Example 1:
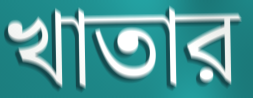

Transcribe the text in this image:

খাতার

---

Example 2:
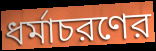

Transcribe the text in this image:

ধর্মাচরণের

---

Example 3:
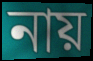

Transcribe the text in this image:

নায়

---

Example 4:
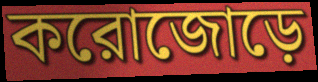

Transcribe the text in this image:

করোজোড়ে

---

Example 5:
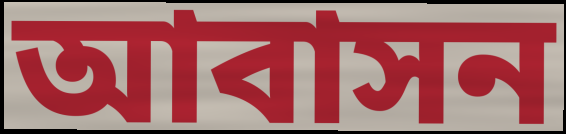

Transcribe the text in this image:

আবাসন